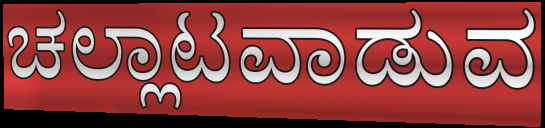
ಚಲ್ಲಾಟವಾಡುವ